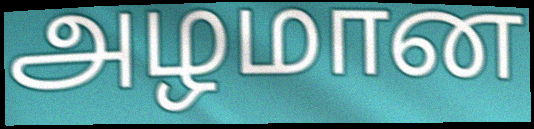
அழமான